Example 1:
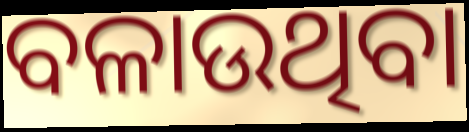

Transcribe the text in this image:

ବଳାଉଥିବା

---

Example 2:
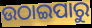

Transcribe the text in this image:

ଉଠାଇପାରୁ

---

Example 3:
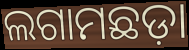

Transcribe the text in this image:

ଲଗାମଛଡ଼ା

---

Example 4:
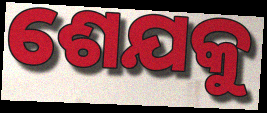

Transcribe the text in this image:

ଶେଯକୁ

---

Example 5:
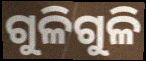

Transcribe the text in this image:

ଗୁଳିଗୁଳି